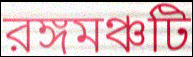
রঙ্গমঞ্চটি